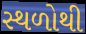
સ્થળોથી